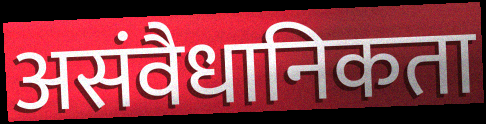
असंवैधानिकता